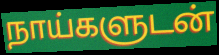
நாய்களுடன்